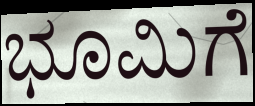
ಭೂಮಿಗೆ